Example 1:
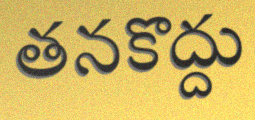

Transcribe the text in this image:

తనకొద్దు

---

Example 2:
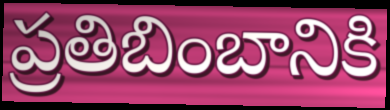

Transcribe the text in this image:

ప్రతిబింబానికి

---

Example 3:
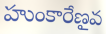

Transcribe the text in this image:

హుంకారేణౖవ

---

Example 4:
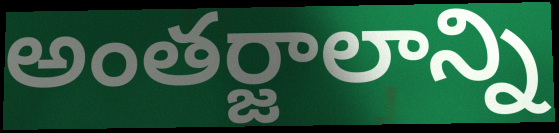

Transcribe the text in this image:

అంతర్జాలాన్ని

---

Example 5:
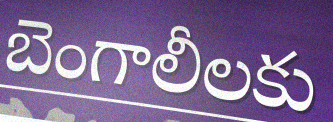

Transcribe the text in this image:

బెంగాలీలకు